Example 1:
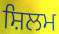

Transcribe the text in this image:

ਸ਼ਿਲਮ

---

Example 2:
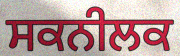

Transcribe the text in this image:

ਸਕਨੀਲਕ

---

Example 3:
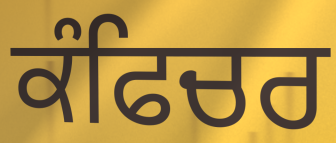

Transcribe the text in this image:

ਕੰਫਿਚਰ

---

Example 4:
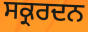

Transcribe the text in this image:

ਸਕ੍ਰਰਦਨ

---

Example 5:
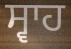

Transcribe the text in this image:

ਸ੍ਵਾਹ